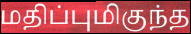
மதிப்புமிகுந்த